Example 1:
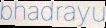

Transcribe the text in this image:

bhadrayu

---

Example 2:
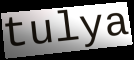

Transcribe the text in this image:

tulya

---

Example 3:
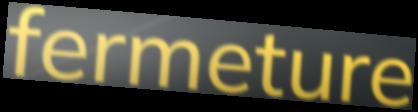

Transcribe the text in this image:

fermeture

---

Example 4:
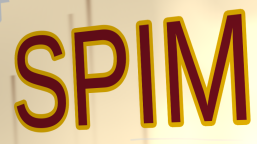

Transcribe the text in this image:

SPIM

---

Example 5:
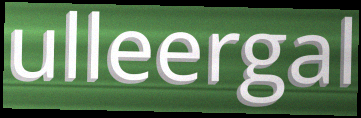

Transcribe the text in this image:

ulleergal